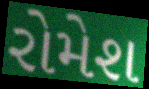
રોમેશ